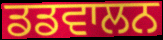
ਡਡਵਾਲਨ